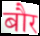
बौर